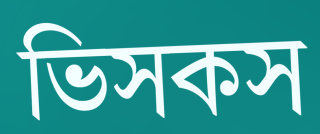
ভিসকস